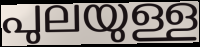
പുലയുള്ള